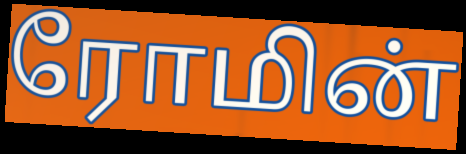
ரோமின்